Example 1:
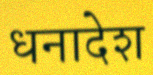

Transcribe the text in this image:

धनादेश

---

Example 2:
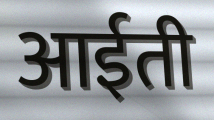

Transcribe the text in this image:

आईती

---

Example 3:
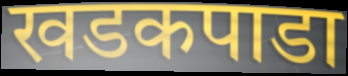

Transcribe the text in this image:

खडकपाडा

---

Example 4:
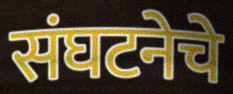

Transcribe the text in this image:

संघटनेचे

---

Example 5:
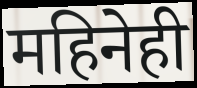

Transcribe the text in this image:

महिनेही